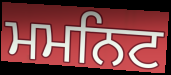
ਮਮਨਿਟ